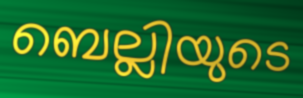
ബെല്ലിയുടെ